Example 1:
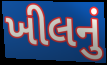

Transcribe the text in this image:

ખીલનું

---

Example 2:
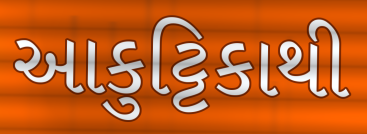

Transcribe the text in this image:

આકુટ્ટિકાથી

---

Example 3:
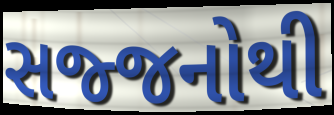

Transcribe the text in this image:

સજ્જનોથી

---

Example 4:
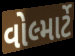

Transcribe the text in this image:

વોલ્માર્ટે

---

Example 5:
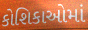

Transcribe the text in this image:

કોશિકાઓમાં